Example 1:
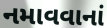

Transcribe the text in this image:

નમાવવાનાં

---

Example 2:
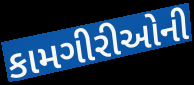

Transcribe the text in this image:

કામગીરીઓની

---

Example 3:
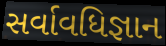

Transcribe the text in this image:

સર્વાવધિજ્ઞાન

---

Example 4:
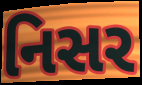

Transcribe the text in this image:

નિસર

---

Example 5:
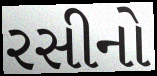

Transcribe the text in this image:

રસીનો